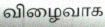
விழைவாக